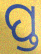
ପ୍ତ